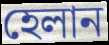
হেলান